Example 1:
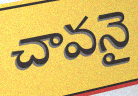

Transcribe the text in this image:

చావనై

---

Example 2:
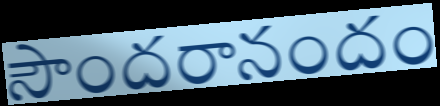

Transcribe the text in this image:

సౌందరానందం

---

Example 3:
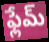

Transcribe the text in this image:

ఫ్లేమ్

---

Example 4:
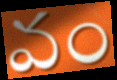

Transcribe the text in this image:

వం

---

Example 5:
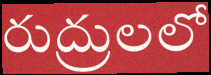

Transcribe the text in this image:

రుద్రులలో